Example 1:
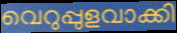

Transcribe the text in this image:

വെറുപ്പുളവാക്കി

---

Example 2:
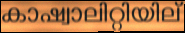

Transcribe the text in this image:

കാഷ്വാലിറ്റിയില്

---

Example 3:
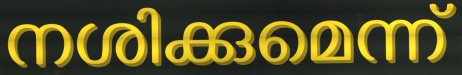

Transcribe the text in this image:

നശിക്കുമെന്ന്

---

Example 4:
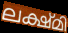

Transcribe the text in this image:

ലക്ഷ്മി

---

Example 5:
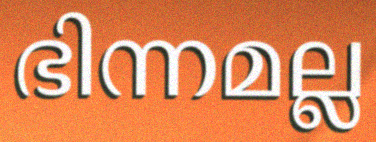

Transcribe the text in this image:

ഭിന്നമല്ല